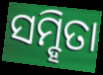
ସମ୍ହିତା